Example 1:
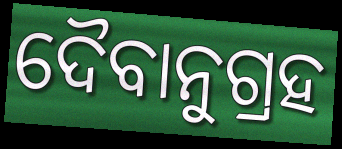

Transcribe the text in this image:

ଦୈବାନୁଗ୍ରହ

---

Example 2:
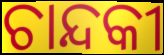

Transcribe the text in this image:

ଚାନ୍ଦକୀ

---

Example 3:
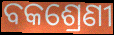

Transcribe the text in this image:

ବକଶ୍ରେଣୀ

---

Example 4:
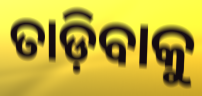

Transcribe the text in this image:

ତାଡ଼ିବାକୁ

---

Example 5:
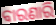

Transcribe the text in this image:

ବାରଣାରି